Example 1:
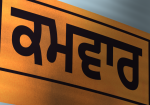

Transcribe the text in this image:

ਕਮਵਾਰ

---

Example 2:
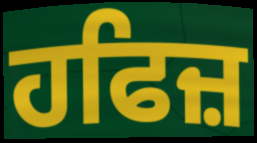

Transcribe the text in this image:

ਹਫਿਜ਼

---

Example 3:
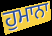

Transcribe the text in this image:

ਹੁਮਾਨਾ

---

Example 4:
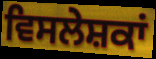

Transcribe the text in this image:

ਵਿਸਲੇਸ਼ਕਾਂ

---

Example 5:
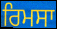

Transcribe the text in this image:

ਰਿਮਸਾ